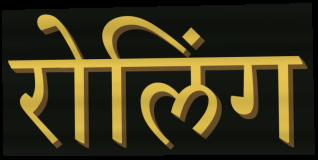
रोलिंग